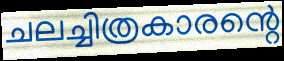
ചലച്ചിത്രകാരന്റെ